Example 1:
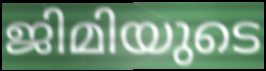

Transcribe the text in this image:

ജിമിയുടെ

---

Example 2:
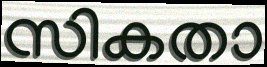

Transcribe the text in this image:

സികതാ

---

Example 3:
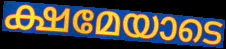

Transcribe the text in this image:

ക്ഷമേയാടെ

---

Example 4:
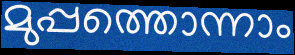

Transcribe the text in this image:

മുപ്പത്തൊന്നാം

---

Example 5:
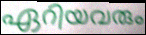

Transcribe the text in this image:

ഏറിയവരും